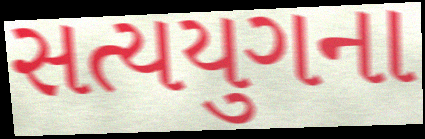
સત્યયુગના